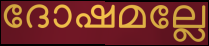
ദോഷമല്ലേ